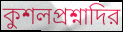
কুশলপ্রশ্নাদির